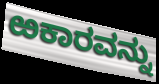
ಱಕಾರವನ್ನು